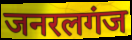
जनरलगंज